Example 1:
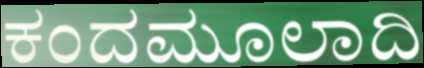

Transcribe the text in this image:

ಕಂದಮೂಲಾದಿ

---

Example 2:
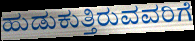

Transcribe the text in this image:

ಹುಡುಕುತ್ತಿರುವವರಿಗೆ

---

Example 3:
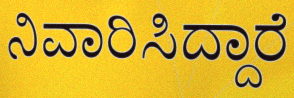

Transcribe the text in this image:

ನಿವಾರಿಸಿದ್ದಾರೆ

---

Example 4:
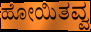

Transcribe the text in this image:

ಹೋಯಿತವ್ವ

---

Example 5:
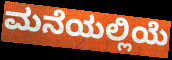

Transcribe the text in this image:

ಮನೆಯಲ್ಲಿಯೆ